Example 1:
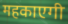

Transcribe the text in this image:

महकाएगी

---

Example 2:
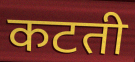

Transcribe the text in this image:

कटती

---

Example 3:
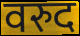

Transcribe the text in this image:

वरुद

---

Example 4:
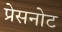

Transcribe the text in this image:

प्रेसनोट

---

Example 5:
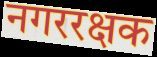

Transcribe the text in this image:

नगररक्षक